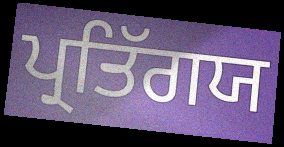
ਪ੍ਰਤਿੱਗਯ